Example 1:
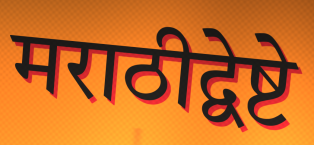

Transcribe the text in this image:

मराठीद्वेष्टे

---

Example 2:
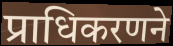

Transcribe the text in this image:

प्राधिकरणने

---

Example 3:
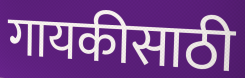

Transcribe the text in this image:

गायकीसाठी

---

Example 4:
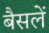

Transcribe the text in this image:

बैसलें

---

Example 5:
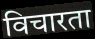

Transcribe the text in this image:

विचारता